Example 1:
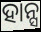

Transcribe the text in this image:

ହାନ୍ସ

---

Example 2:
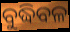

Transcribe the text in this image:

ବୁଦ୍ଧିବଳ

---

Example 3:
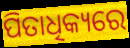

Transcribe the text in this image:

ପିତାଧିକ୍ୟରେ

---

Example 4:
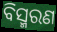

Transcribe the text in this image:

ବିସ୍ମରଣ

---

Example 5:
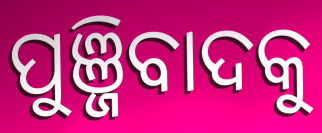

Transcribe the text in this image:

ପୁଞ୍ଜିବାଦକୁ